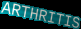
ARTHRITIS